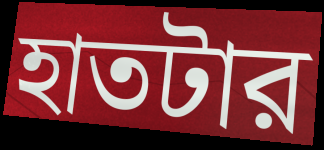
হাতটার